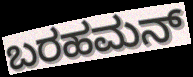
ಬರಹಮನ್